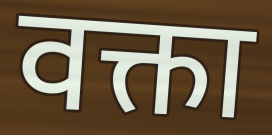
वक्ता